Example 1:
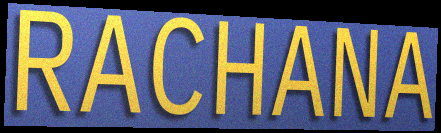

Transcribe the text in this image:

RACHANA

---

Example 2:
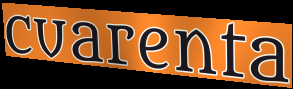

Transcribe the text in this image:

cuarenta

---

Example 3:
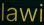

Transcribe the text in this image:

lawi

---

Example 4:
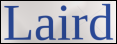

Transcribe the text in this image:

Laird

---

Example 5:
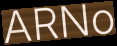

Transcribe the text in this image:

ARNo